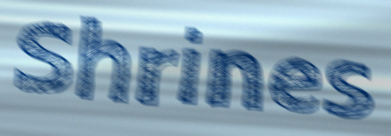
Shrines